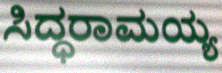
ಸಿದ್ಧರಾಮಯ್ಯ